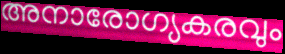
അനാരോഗ്യകരവും